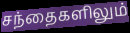
சந்தைகளிலும்